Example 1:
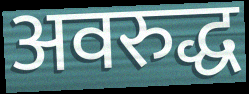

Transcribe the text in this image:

अवरुद्ध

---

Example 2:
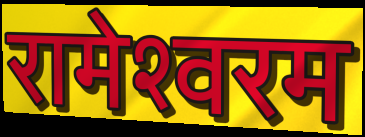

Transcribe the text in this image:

रामेश्वरम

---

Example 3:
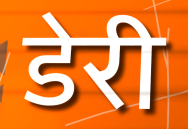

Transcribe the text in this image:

डेरी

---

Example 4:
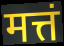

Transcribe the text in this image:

मत्तं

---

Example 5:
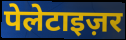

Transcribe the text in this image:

पेलेटाइज़र